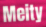
Meity